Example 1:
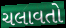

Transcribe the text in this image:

ચલાવતો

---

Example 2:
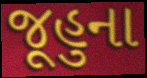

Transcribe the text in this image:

જૂહુના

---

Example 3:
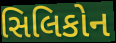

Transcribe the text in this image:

સિલિકોન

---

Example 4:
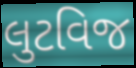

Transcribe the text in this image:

લુટવિજ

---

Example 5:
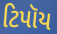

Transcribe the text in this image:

ટિપૉય